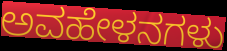
ಅವಹೇಳನಗಳು